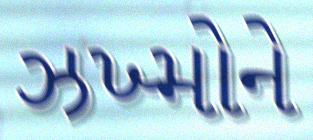
ઝખ્મોને